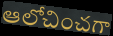
ఆలోచించగా